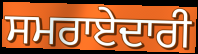
ਸਮਰਾਏਦਾਰੀ